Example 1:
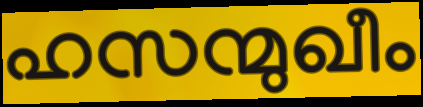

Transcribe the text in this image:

ഹസന്മുഖീം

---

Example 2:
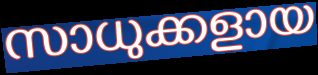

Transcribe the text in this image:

സാധുക്കളായ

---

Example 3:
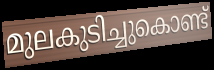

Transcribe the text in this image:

മുലകുടിച്ചുകൊണ്ട്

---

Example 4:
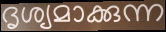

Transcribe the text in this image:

ദൃശ്യമാക്കുന്ന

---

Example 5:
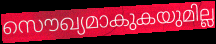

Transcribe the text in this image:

സൌഖ്യമാകുകയുമില്ല